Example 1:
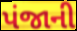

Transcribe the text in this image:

પંજાની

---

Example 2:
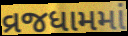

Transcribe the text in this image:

વ્રજધામમાં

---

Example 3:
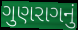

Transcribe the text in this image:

ગુણરાગનું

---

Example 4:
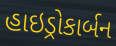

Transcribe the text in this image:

હાઇડ્રોકાર્બન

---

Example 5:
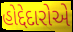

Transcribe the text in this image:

હોદ્દેદારોએ